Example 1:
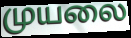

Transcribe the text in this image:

முயலை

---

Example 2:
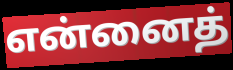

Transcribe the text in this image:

என்னைத்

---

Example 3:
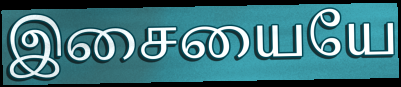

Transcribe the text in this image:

இசையையே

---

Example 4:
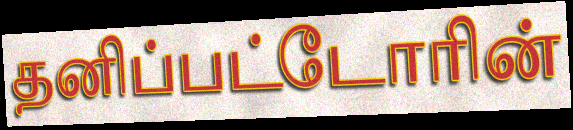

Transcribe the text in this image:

தனிப்பட்டோரின்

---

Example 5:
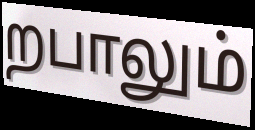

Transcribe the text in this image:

றபாலும்